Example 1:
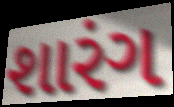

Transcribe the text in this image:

શારંગ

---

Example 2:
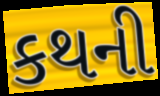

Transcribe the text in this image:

કથની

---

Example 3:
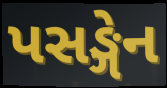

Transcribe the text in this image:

પસઙ્ગેન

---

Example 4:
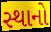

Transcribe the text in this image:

સ્થાનો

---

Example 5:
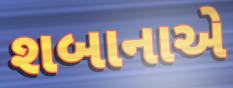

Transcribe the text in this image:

શબાનાએ